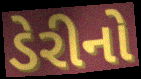
ડેરીનો